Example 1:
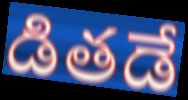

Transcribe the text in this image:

డితడే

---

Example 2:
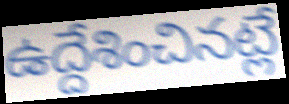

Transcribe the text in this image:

ఉద్దేశించినట్లే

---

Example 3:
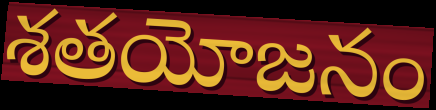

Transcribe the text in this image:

శతయోజనం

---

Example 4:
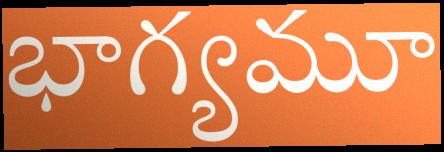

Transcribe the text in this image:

భాగ్యమూ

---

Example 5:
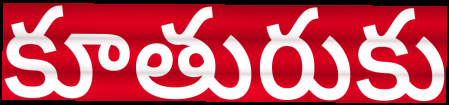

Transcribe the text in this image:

కూతురుకు